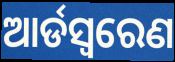
ଆର୍ଡସ୍ଵରେଣ